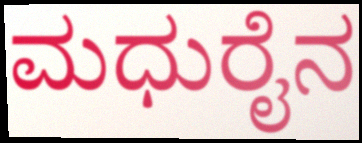
ಮಧುರೈನ